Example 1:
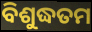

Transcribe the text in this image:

ବିଶୁଦ୍ଧତମ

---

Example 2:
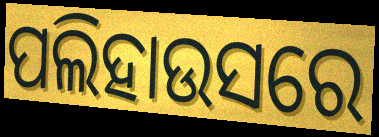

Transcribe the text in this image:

ପଲିହାଉସରେ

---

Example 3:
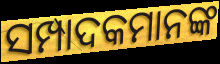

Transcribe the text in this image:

ସମ୍ପାଦକମାନଙ୍କ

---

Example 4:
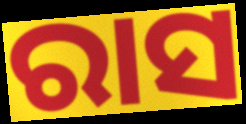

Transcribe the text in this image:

ରାସ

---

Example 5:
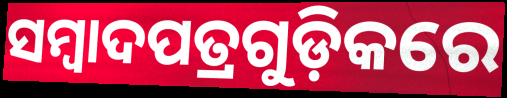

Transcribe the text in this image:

ସମ୍ୱାଦପତ୍ରଗୁଡ଼ିକରେ